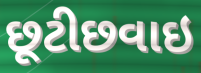
છૂટીછવાઇ